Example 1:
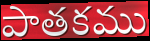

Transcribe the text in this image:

పాతకము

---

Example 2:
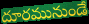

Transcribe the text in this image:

దూరమునుండే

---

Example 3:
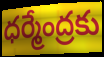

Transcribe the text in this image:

ధర్మేంద్రకు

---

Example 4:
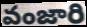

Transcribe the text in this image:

వంజారి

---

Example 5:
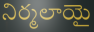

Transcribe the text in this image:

నిర్మలాయై